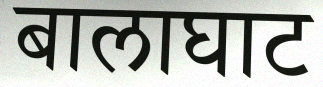
बालाघाट